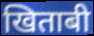
खिताबी